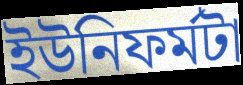
ইউনিফর্মটা